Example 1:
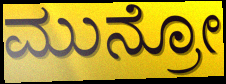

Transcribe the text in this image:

ಮುನ್ರೋ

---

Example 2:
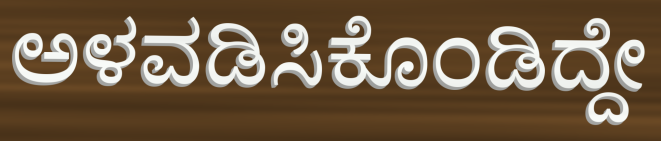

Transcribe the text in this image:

ಅಳವಡಿಸಿಕೊಂಡಿದ್ದೇ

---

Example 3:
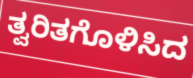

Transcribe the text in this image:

ತ್ವರಿತಗೊಳಿಸಿದ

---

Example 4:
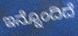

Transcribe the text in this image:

ಇನ್ನೊಂದಿದೆ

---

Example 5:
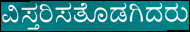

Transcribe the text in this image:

ವಿಸ್ತರಿಸತೊಡಗಿದರು